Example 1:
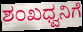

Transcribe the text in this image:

ಶಂಖಧ್ವನಿಗೆ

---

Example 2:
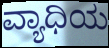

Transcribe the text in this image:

ವ್ಯಾಧಿಯ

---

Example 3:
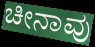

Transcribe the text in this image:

ಚೀನಾವು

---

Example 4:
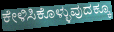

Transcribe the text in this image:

ಕೇಳಿಸಿಕೊಳ್ಳುವುದಕ್ಕೂ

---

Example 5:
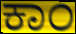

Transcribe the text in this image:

ಕಾಂ